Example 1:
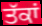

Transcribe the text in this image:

ਤੱਕਾਂ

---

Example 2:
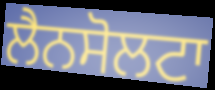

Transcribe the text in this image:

ਲੈਨਸੋਲਟਾ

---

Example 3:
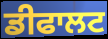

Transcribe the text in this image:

ਡੀਫਾਲਟ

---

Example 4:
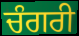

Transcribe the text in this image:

ਚੰਗਰੀ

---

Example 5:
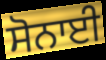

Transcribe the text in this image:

ਸੋਨਾਈ